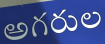
అగరుల